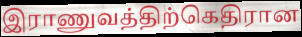
இராணுவத்திற்கெதிரான